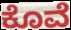
ಕೊವೆ